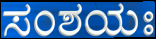
ಸಂಶಯಃ